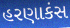
હરણાકંસ